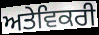
ਅਤੇਵਿਕਰੀ